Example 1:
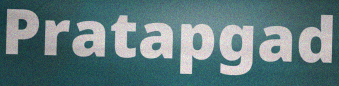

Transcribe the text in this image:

Pratapgad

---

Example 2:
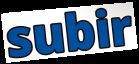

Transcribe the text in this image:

subir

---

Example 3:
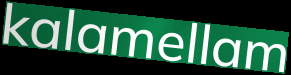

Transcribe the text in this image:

kalamellam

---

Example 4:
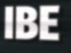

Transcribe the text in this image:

IBE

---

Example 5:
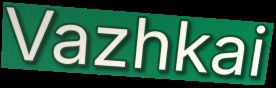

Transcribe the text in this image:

Vazhkai